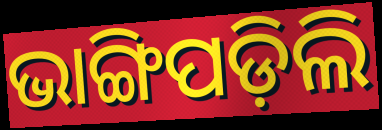
ଭାଙ୍ଗିପଡ଼ିଲି